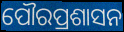
ପୌରପ୍ରଶାସନ